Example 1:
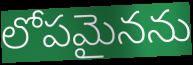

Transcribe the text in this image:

లోపమైనను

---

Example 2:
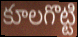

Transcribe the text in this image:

కూలగొట్టి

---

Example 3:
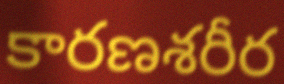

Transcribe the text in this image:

కారణశరీర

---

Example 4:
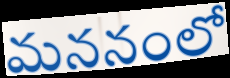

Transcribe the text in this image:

మననంలో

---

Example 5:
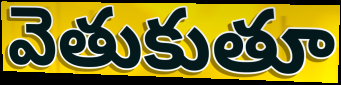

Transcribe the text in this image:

వెతుకుతూ